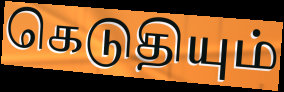
கெடுதியும்